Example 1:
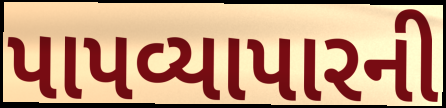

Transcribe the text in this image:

પાપવ્યાપારની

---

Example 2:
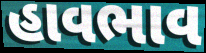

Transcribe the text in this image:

હાવભાવ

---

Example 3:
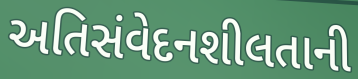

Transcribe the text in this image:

અતિસંવેદનશીલતાની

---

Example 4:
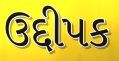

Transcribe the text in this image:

ઉદ્દીપક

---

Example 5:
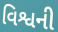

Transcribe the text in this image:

વિશ્વની